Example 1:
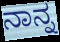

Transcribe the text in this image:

ನಾನ್ನ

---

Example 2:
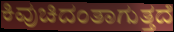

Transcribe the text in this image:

ಕಿವುಚಿದಂತಾಗುತ್ತದೆ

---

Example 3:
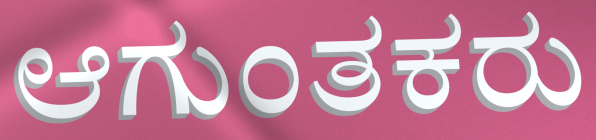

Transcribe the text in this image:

ಆಗುಂತಕರು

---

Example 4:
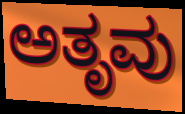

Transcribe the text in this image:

ಅತೃವು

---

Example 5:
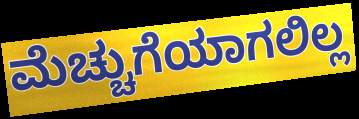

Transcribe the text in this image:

ಮೆಚ್ಚುಗೆಯಾಗಲಿಲ್ಲ